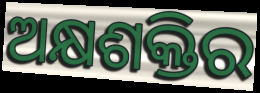
ଅକ୍ଷଶକ୍ତିର